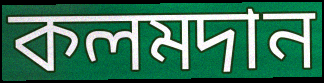
কলমদান